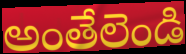
అంతేలెండి